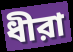
ধীরা